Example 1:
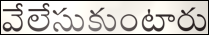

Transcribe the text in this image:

వేలేసుకుంటారు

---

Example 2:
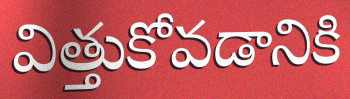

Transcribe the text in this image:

విత్తుకోవడానికి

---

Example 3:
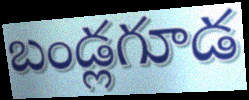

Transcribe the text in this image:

బండ్లగూడ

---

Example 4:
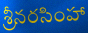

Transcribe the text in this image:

శ్రీనరసింహా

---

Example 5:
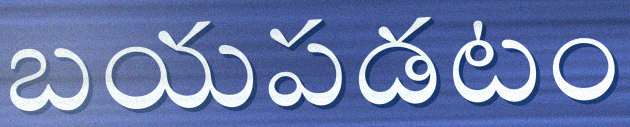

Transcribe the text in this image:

బయపడటం